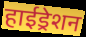
हाईड्रेशन